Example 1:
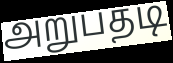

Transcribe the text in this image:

அறுபதடி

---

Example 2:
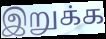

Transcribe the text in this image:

இறுக்க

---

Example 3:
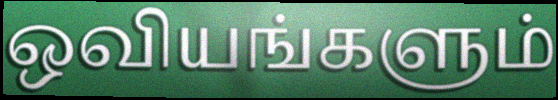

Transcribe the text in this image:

ஒவியங்களும்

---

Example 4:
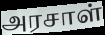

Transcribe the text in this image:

அரசாள்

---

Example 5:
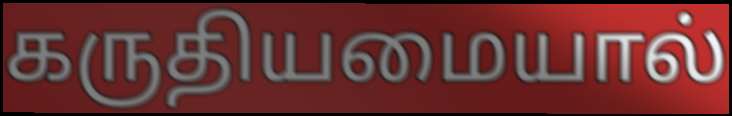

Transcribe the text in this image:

கருதியமையால்